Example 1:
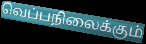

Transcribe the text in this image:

வெப்பநிலைக்கும்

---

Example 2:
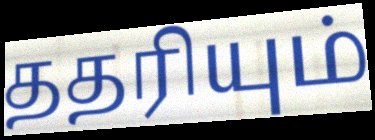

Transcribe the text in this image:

ததரியும்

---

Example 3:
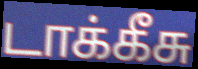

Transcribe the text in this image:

டாக்கீசு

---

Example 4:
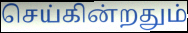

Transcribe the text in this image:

செய்கின்றதும்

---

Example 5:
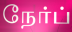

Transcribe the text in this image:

நேர்ப்